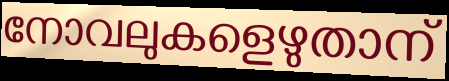
നോവലുകളെഴുതാന്